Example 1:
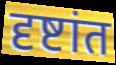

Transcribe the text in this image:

दृष्टांत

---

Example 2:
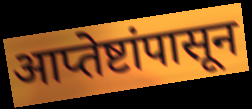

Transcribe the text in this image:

आप्तेष्टांपासून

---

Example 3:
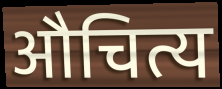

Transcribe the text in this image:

औचित्य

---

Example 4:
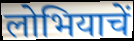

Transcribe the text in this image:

लोभियाचें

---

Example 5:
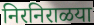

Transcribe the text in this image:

निरनिराळया